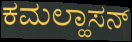
ಕಮಲ್ಹಾಸನ್